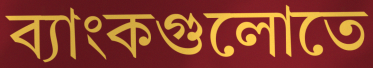
ব্যাংকগুলোতে